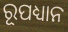
ରୂପଧ୍ୟାନ